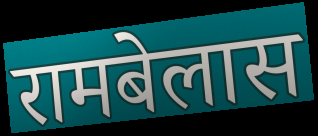
रामबेलास